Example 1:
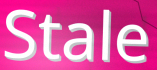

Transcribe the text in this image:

Stale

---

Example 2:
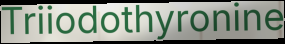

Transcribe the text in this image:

Triiodothyronine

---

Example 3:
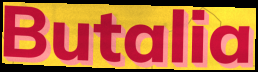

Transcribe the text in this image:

Butalia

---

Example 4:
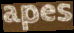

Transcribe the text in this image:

apes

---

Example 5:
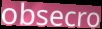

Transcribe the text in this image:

obsecro